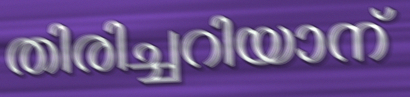
തിരിച്ചറിയാന്